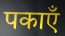
पकाएँ